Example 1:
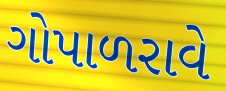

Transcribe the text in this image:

ગોપાળરાવે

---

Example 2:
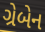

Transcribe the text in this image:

ગ્રેબેન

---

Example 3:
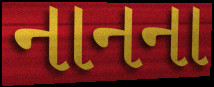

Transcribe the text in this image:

નાનના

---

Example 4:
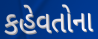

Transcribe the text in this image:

કહેવતોના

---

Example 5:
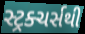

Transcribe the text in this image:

સ્ટ્રક્ચર્સથી